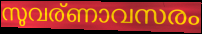
സുവര്ണാവസരം